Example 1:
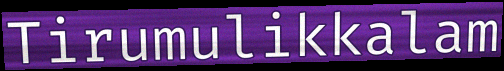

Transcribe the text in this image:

Tirumulikkalam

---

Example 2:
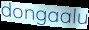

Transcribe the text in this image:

dongaalu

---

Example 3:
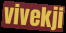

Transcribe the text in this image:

vivekji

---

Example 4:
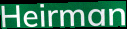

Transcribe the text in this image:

Heirman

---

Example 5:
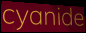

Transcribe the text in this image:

cyanide